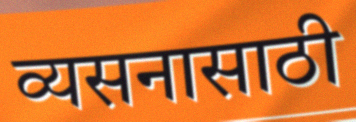
व्यसनासाठी